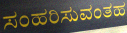
ಸಂಹರಿಸುವಂತಹ